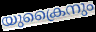
യുക്രൈനും